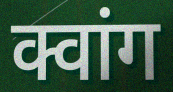
क्वांग